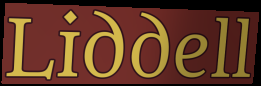
Liddell